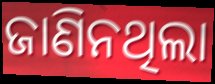
ଜାଣିନଥିଲା